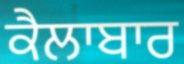
ਕੈਲਾਬਾਰ